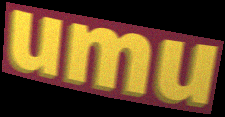
umu